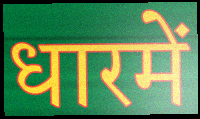
धारमें